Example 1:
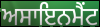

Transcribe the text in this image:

ਅਸਾਇਨਮੈਂਟ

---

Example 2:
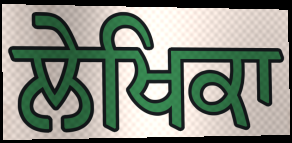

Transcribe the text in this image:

ਲੇਖਿਕਾ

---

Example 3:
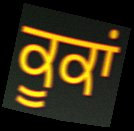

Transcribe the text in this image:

ਕੂਕਾਂ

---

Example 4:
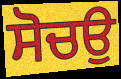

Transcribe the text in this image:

ਸੋਚਉ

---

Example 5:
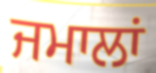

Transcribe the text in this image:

ਜਮਾਲਾਂ